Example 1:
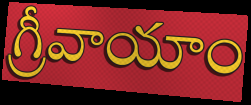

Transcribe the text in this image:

గ్రీవాయాం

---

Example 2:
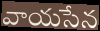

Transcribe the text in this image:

వాయసేన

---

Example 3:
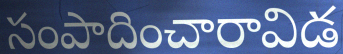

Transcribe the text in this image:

సంపాదించారావిడ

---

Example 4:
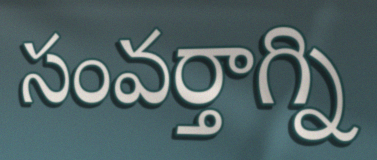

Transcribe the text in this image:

సంవర్తాగ్ని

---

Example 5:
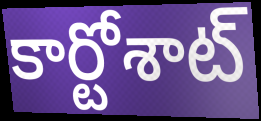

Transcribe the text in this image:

కార్టోశాట్